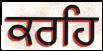
ਕਰਹਿ